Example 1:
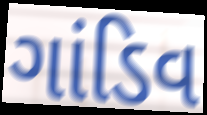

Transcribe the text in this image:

ગાંડિવ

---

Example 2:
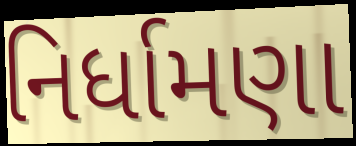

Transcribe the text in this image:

નિર્ધામણા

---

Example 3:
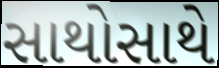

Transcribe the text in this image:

સાથોસાથે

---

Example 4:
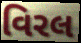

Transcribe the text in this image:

વિરલ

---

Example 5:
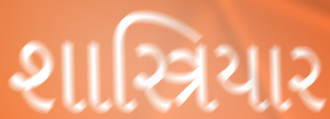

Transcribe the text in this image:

શાસ્ત્રિયાર